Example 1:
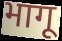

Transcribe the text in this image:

भागू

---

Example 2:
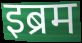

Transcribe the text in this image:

इब्रम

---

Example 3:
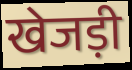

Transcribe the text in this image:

खेजड़ी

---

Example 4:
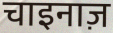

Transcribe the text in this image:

चाइनाज़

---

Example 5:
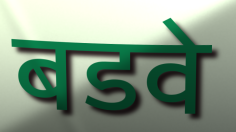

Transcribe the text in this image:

बडवे